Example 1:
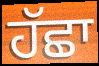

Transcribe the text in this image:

ਹੱਛਾ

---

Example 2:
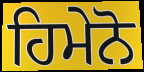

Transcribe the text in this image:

ਹਿਮੇਨੋ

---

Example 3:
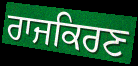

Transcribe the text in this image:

ਰਾਜਕਿਰਣ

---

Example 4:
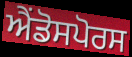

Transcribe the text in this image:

ਐਂਡੋਸਪੋਰਸ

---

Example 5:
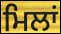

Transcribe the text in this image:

ਮਿਲਾਂ